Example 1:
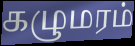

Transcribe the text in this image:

கழுமரம்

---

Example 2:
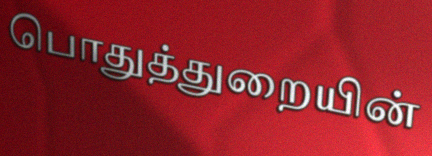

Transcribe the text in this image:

பொதுத்துறையின்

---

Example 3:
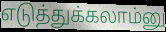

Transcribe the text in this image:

எடுத்துக்கலாம்னு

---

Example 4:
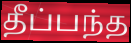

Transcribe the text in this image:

தீப்பந்த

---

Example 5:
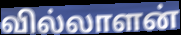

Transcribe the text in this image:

வில்லாளன்